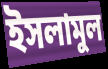
ইসলামুল